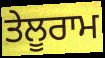
ਤੇਲੂਰਾਮ